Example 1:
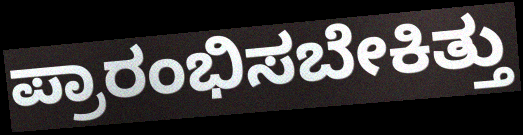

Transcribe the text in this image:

ಪ್ರಾರಂಭಿಸಬೇಕಿತ್ತು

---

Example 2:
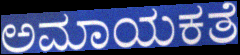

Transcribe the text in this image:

ಅಮಾಯಕತೆ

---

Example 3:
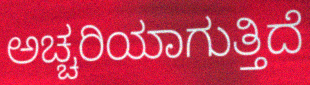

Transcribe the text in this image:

ಅಚ್ಚರಿಯಾಗುತ್ತಿದೆ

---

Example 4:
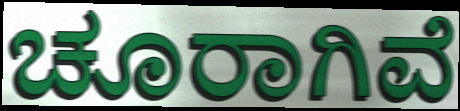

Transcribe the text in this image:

ಚೂರಾಗಿವೆ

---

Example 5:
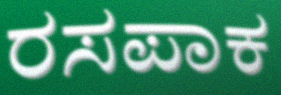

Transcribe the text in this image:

ರಸಪಾಕ